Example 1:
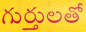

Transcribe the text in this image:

గుర్తులతో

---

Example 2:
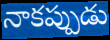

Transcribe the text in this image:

నాకప్పుడు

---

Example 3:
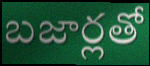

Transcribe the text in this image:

బజార్లతో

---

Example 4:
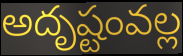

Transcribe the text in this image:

అదృష్టంవల్ల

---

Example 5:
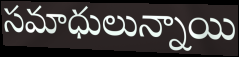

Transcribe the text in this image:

సమాధులున్నాయి